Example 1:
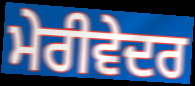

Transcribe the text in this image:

ਮੇਰੀਵੇਦਰ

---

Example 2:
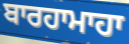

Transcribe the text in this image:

ਬਾਰਹਾਮਾਹਾ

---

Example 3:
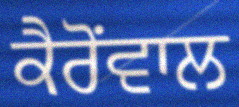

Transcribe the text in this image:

ਕੈਰੋਂਵਾਲ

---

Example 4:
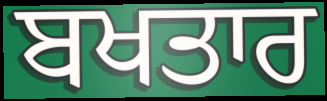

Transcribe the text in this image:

ਬਖਤਾਰ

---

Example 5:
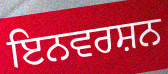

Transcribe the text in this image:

ਇਨਵਰਸ਼ਨ